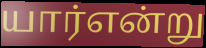
யார்என்று